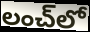
లంచ్‌లో